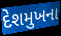
દેશમુખના